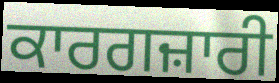
ਕਾਰਗਜ਼ਾਰੀ